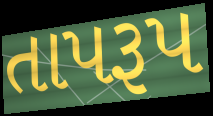
તાપરૂપ